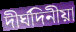
দীৰ্ঘদিনীয়া